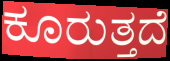
ಕೂರುತ್ತದೆ